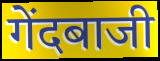
गेंदबाजी